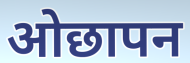
ओछापन